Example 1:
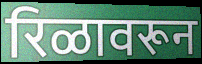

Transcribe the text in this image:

रिळावरून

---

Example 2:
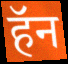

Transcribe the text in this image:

हॅन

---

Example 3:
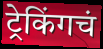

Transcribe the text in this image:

ट्रेकिंगचं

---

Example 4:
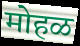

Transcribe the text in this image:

मोहळ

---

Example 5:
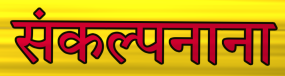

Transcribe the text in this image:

संकल्पनाना